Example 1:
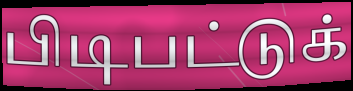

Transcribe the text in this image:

பிடிபட்டுக்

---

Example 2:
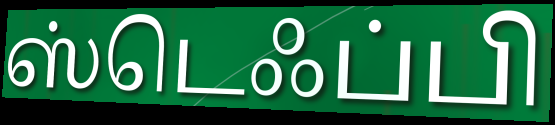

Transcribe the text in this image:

ஸ்டெஃப்பி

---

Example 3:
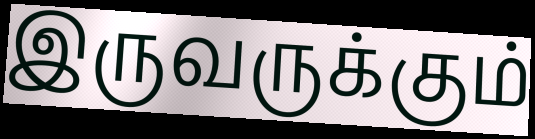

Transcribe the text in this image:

இருவருக்கும்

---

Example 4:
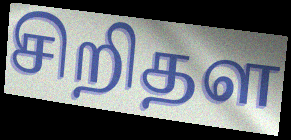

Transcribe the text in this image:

சிறிதள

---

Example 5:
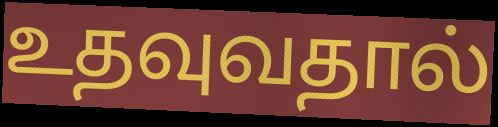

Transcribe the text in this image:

உதவுவதால்